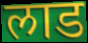
लाड